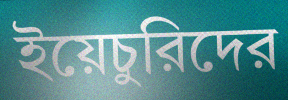
ইয়েচুরিদের